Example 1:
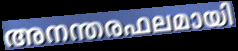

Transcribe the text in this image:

അനന്തരഫലമായി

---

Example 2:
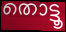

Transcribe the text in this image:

തൊട്ടൂ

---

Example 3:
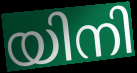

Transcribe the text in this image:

യിനി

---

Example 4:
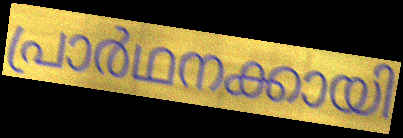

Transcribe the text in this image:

പ്രാർഥനക്കായി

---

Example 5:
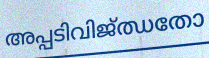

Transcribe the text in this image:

അപ്പടിവിജ്ഝതോ